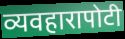
व्यवहारापोटी